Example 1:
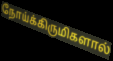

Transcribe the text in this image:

நோய்க்கிருமிகளால்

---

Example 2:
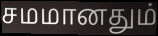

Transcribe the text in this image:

சமமானதும்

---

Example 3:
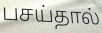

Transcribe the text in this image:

பசய்தால்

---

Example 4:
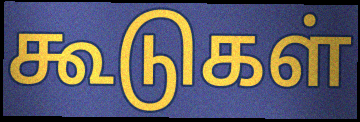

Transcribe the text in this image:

கூடுகள்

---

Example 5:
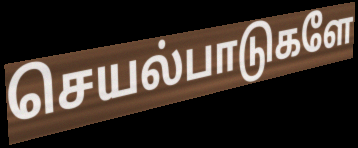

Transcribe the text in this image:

செயல்பாடுகளே